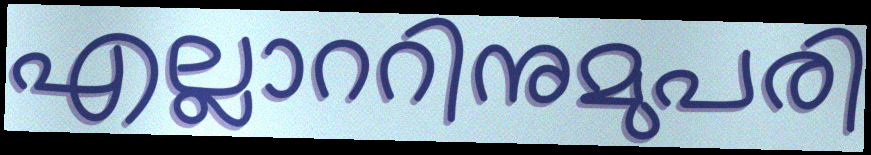
എല്ലാററിനുമുപരി